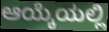
ಆಯ್ಕೆಯಲ್ಲಿ